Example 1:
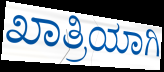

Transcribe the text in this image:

ಖಾತ್ರಿಯಾಗಿ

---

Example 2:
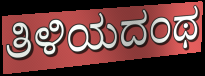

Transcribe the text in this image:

ತಿಳಿಯದಂಥ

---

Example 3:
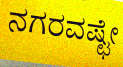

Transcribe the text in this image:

ನಗರವಷ್ಟೇ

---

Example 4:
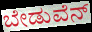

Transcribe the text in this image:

ಬೇಡುವೆನ್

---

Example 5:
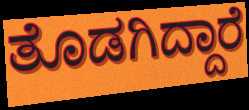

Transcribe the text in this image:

ತೊಡಗಿದ್ದಾರೆ